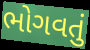
ભોગવતું